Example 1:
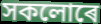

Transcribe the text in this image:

সকলোৰে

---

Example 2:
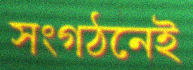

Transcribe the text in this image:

সংগঠনেই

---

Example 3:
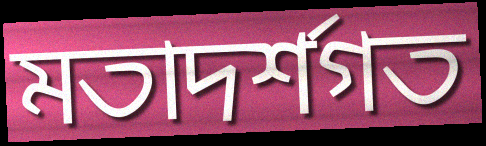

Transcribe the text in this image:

মতাদৰ্শগত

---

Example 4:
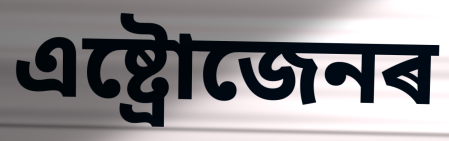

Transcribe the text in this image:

এষ্ট্ৰোজেনৰ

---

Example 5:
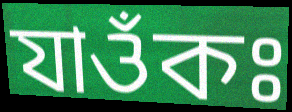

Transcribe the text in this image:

যাওঁকঃ